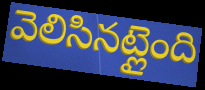
వెలిసినట్లైంది